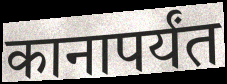
कानापर्यंत